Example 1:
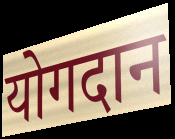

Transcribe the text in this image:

योगदान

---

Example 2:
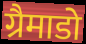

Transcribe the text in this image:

ग्रैमाडो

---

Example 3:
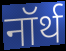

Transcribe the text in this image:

नॉर्थ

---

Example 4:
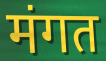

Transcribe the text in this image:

मंगत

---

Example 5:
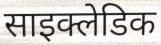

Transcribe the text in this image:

साइक्लेडिक